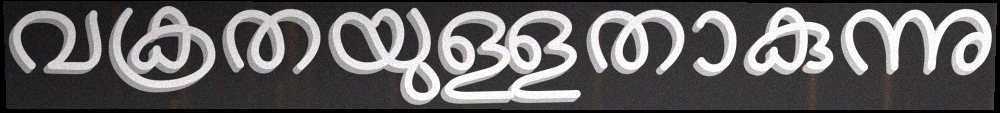
വക്രതയുള്ളതാകുന്നു